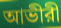
আভীরী